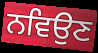
ਨਵਿਉਣ